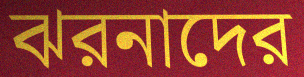
ঝরনাদের